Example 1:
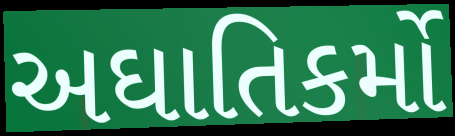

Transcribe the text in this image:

અઘાતિકર્મો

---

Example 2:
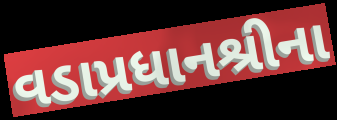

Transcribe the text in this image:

વડાપ્રધાનશ્રીના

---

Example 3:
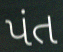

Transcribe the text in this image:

પંત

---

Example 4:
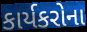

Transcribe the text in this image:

કાર્યકરોના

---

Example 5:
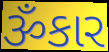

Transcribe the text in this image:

ૐકાર